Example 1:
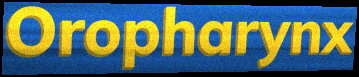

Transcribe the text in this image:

Oropharynx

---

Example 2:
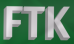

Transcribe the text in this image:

FTK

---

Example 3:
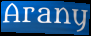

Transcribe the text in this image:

Arany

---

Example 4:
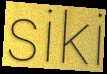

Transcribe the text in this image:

siki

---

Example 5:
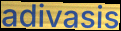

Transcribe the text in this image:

adivasis